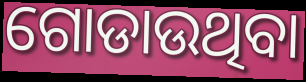
ଗୋଡାଉଥିବା